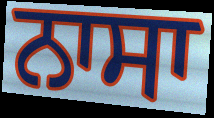
ਨਾਸਾ